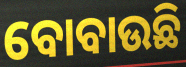
ବୋବାଉଛି